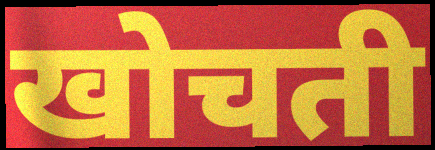
खोचती